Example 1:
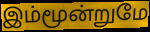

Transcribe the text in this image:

இம்மூன்றுமே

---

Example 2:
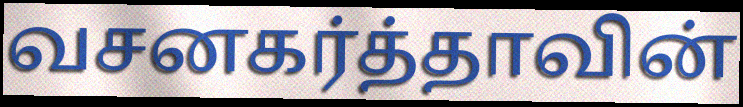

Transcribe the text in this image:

வசனகர்த்தாவின்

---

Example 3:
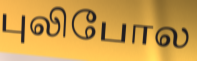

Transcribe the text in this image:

புலிபோல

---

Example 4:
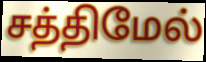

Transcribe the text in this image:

சத்திமேல்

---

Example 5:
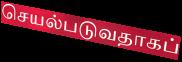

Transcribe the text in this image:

செயல்படுவதாகப்